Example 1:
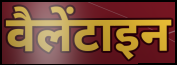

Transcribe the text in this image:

वैलेंटाइन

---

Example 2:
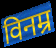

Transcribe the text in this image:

विनम्र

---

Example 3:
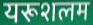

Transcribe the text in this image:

यरूशलम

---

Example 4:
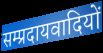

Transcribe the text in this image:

सम्प्रदायवादियों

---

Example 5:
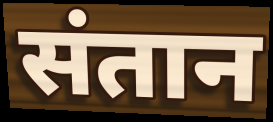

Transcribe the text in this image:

संतान